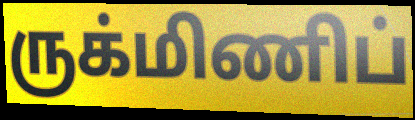
ருக்மிணிப்